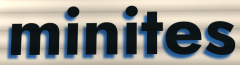
minites